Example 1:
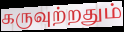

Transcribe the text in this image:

கருவுற்றதும்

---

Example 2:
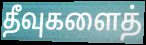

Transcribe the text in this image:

தீவுகளைத்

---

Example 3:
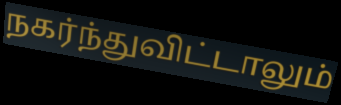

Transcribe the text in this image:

நகர்ந்துவிட்டாலும்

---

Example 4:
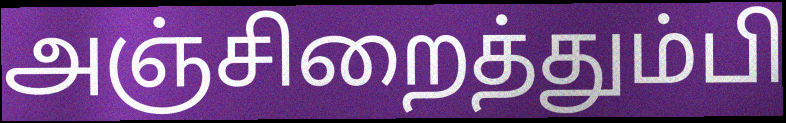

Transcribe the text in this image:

அஞ்சிறைத்தும்பி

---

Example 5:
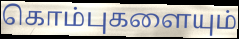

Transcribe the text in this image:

கொம்புகளையும்